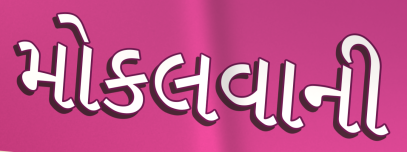
મોકલવાની